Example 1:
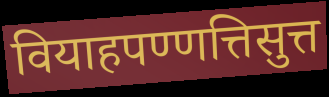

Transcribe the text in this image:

वियाहपण्णत्तिसुत्त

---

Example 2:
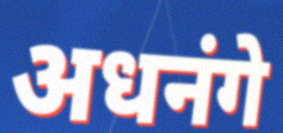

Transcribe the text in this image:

अधनंगे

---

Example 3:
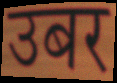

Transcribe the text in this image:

उबर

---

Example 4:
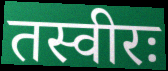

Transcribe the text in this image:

तस्वीरः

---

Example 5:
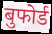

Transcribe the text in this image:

बुफोर्ड